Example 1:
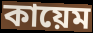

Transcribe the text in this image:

কায়েম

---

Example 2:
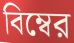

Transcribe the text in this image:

বিম্বের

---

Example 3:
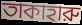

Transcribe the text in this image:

তাকাহারু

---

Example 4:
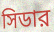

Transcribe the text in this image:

সিডার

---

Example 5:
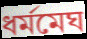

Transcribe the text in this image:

ধর্মমেঘ